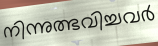
നിന്നുത്ഭവിച്ചവർ